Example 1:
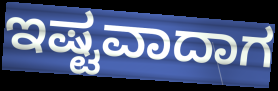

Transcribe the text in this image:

ಇಷ್ಟವಾದಾಗ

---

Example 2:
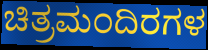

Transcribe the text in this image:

ಚಿತ್ರಮಂದಿರಗಳ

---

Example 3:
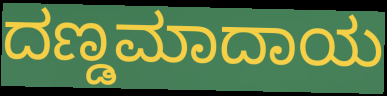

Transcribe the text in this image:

ದಣ್ಡಮಾದಾಯ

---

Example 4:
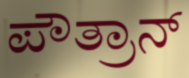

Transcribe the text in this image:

ಪೌತ್ರಾನ್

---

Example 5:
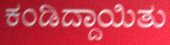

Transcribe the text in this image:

ಕಂಡಿದ್ದಾಯಿತು